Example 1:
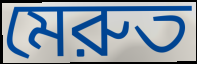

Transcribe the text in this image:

মেৰুত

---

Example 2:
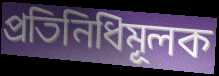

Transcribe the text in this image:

প্ৰতিনিধিমূলক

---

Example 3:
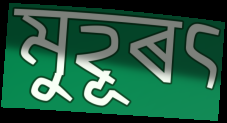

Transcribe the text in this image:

মুহূৰৎ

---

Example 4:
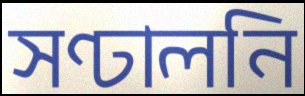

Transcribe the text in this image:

সণ্ঢালনি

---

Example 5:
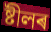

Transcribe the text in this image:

ষ্টীলৰ